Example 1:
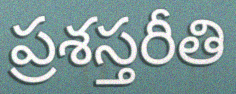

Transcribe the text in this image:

ప్రశస్తరీతి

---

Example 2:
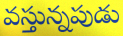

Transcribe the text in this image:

వస్తున్నపుడు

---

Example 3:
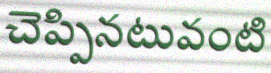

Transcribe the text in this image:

చెప్పినటువంటి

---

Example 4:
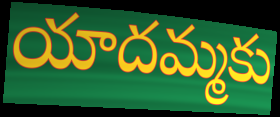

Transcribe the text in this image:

యాదమ్మకు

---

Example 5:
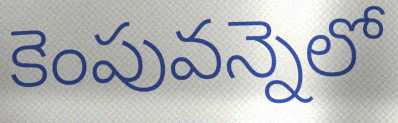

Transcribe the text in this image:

కెంపువన్నెలో